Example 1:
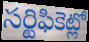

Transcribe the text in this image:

సర్టిఫికెట్లో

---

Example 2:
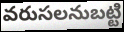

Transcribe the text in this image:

వరుసలనుబట్టి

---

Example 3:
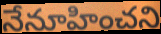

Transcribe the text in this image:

నేనూహించని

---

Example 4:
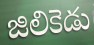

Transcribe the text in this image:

జిలికెడు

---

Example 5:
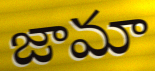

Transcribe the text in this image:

జామా